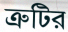
ত্রুটির